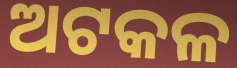
ଅଟକଳ